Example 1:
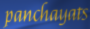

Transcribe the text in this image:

panchayats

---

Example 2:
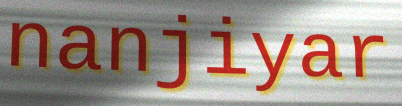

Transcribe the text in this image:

nanjiyar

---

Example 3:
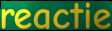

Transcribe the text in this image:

reactie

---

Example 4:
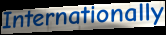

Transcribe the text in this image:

Internationally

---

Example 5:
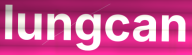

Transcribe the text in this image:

lungcan